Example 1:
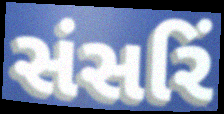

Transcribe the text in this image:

સંસરિં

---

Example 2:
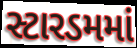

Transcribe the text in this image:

સ્ટારડમમાં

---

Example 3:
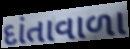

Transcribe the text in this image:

દાંતાવાળા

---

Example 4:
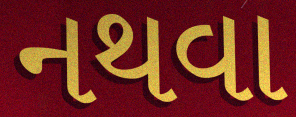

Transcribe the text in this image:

નથવા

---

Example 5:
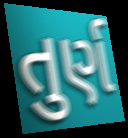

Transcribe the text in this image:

તુર્ણ